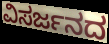
ವಿಸರ್ಜನದ